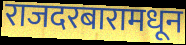
राजदरबारामधून